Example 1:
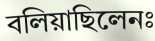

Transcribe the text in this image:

বলিয়াছিলেনঃ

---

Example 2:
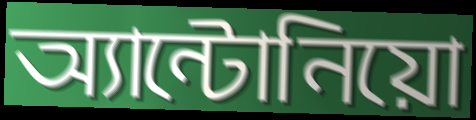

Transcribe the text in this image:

অ্যান্টোনিয়ো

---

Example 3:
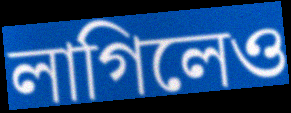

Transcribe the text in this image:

লাগিলেও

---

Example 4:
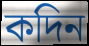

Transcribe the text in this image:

কদিন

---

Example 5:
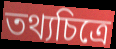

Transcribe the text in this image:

তথ্যচিত্রে